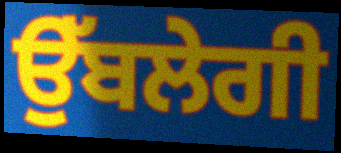
ਉੱਬਲੇਗੀ